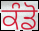
ਕੰਡੋ